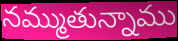
నమ్ముతున్నాము